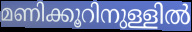
മണിക്കൂറിനുള്ളിൽ